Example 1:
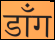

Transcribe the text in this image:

डाँग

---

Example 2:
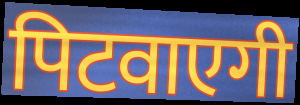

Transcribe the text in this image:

पिटवाएगी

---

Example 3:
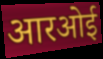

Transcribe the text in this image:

आरओई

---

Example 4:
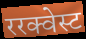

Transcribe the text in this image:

ररक्वेस्ट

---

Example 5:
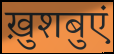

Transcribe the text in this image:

ख़ुशबुएं